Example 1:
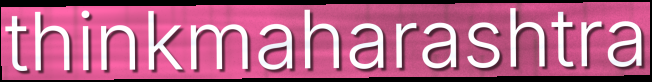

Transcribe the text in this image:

thinkmaharashtra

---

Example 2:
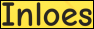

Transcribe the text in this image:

Inloes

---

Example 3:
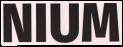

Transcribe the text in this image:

NIUM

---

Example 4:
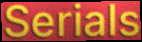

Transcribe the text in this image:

Serials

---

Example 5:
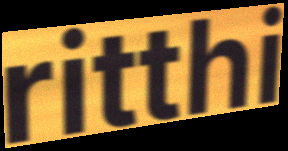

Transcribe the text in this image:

ritthi